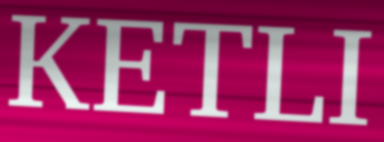
KETLI